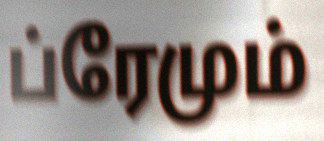
ப்ரேமும்